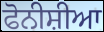
ਫੋਨੀਸ਼ੀਆ